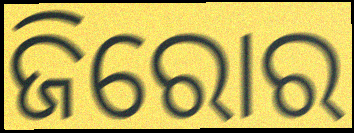
ଜିରୋର